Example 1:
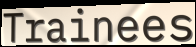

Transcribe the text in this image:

Trainees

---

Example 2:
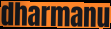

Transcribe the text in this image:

dharmanu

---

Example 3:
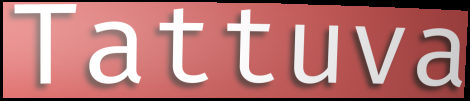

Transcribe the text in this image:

Tattuva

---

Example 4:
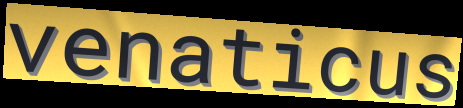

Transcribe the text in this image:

venaticus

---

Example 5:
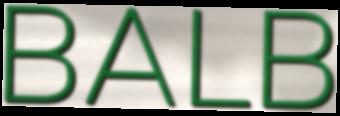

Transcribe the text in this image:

BALB